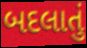
બદલાતું